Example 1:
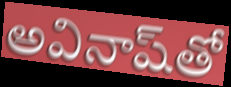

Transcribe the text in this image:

అవినాష్‌తో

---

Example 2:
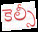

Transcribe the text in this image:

కెల్సీ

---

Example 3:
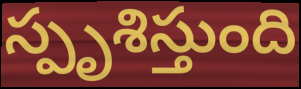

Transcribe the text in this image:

స్పృశిస్తుంది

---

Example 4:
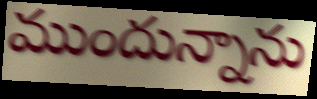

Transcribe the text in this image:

ముందున్నాను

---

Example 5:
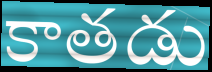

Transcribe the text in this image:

కాతడు